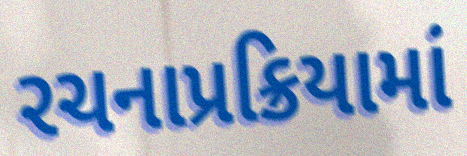
રચનાપ્રક્રિયામાં